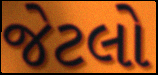
જેટલો